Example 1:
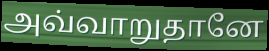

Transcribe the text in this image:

அவ்வாறுதானே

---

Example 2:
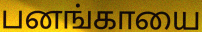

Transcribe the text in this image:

பனங்காயை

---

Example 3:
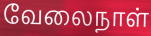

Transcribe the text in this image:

வேலைநாள்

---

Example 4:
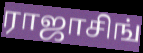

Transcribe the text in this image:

ராஜாசிங்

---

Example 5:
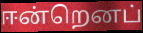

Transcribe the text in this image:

ஈன்றெனப்